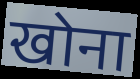
खोना